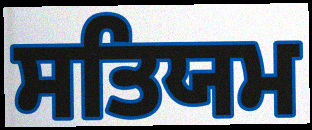
ਸਤਿਯਮ